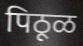
पिठूळ